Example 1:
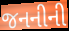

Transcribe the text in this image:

જનનીની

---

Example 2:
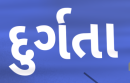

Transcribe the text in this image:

દુર્ગતા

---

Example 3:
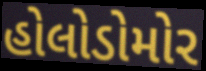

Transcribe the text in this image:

હોલોડોમોર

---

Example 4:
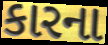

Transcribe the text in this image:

કારના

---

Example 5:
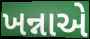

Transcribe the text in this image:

ખન્નાએ